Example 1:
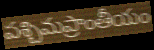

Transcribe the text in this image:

పశ్చిమప్రాంతీయం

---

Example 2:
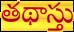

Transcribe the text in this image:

తథాస్తు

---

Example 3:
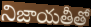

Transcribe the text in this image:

నిజాయతీతో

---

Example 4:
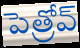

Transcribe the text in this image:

పెత్రోవ్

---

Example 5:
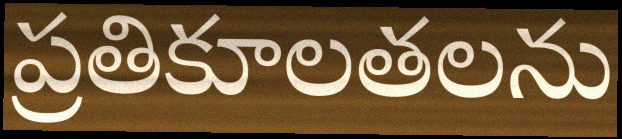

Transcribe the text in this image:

ప్రతికూలతలను